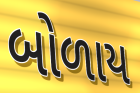
બોળાય